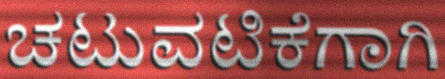
ಚಟುವಟಿಕೆಗಾಗಿ